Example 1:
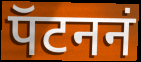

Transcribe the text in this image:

पॅटननं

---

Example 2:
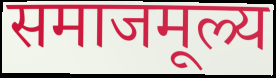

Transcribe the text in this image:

समाजमूल्य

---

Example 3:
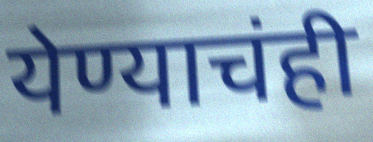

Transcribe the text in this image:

येण्याचंही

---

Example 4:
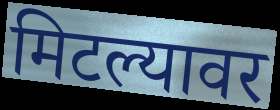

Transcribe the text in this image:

मिटल्यावर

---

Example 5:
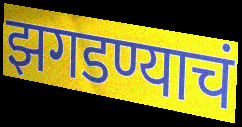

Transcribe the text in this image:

झगडण्याचं